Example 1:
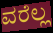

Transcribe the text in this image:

ವರೆಲ್ಲ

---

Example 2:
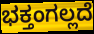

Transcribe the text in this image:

ಭಕ್ತಂಗಲ್ಲದೆ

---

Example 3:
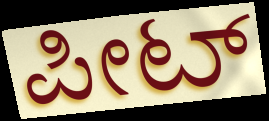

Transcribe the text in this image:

ಪೀಟ್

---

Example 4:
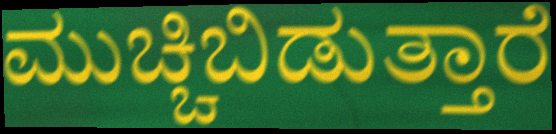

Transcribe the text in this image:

ಮುಚ್ಚಿಬಿಡುತ್ತಾರೆ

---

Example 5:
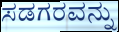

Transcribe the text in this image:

ಸಡಗರವನ್ನು